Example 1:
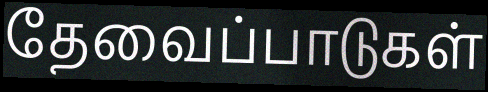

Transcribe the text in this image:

தேவைப்பாடுகள்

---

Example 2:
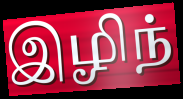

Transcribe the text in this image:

இழிந்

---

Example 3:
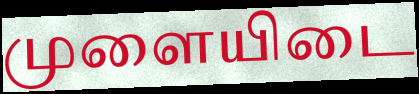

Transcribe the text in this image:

முளையிடை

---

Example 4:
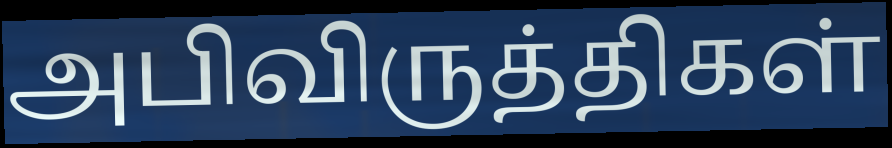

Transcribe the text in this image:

அபிவிருத்திகள்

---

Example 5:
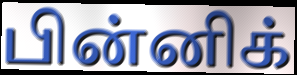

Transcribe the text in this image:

பின்னிக்